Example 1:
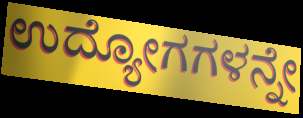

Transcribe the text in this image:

ಉದ್ಯೋಗಗಳನ್ನೇ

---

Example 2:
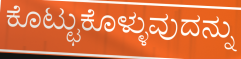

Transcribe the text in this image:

ಕೊಟ್ಟುಕೊಳ್ಳುವುದನ್ನು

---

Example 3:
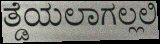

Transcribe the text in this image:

ತ್ಡೆಯಲಾಗಲ್ಲಲಿ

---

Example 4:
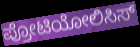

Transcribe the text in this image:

ಪ್ರೋಟಿಯೋಲಿಸಿಸ್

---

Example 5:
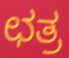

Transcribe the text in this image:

ಛತ್ರ